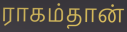
ராகம்தான்